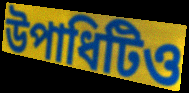
উপাধিটিও